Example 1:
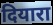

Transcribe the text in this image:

दियारा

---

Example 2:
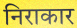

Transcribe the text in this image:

निराकार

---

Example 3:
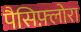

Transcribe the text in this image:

पैसिफ़्लोरा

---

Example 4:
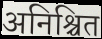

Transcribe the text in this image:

अनिश्चित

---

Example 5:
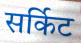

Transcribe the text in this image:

सर्किट